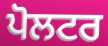
ਪੋਲਟਰ